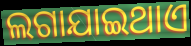
ଲଗାଯାଇଥାଏ